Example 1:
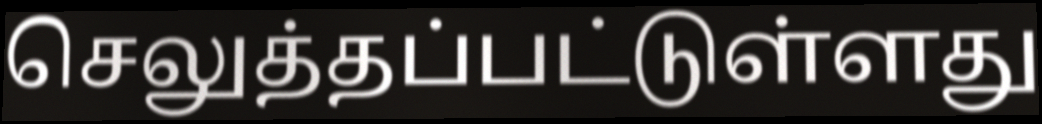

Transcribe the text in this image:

செலுத்தப்பட்டுள்ளது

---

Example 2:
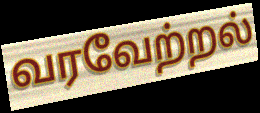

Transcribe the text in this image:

வரவேற்றல்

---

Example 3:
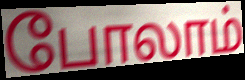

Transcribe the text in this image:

போலாம்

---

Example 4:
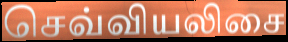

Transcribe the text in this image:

செவ்வியலிசை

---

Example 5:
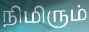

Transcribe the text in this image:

நிமிரும்